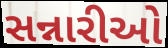
સન્નારીઓ